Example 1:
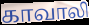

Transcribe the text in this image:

காவாலி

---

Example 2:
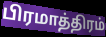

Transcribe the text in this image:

பிரமாத்திரம்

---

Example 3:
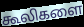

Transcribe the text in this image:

கூலிகளை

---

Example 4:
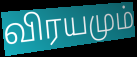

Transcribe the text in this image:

விரயமும்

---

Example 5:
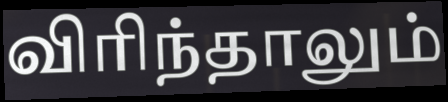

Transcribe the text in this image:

விரிந்தாலும்